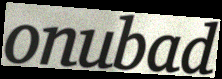
onubad